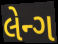
લેન્ગ